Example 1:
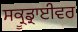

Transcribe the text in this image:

ਸਕ੍ਰੂਡ੍ਰਾਈਵਰ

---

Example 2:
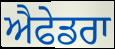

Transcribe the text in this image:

ਐਫੇਡਰਾ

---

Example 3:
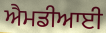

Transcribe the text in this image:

ਐਮਡੀਆਈ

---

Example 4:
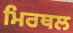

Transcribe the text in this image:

ਮਿਰਥਲ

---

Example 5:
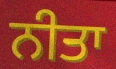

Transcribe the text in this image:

ਨੀਤਾ